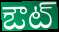
ఔట్